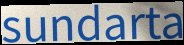
sundarta